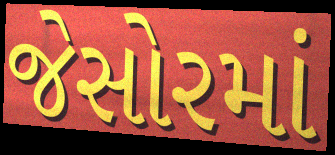
જેસોરમાં